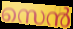
സെൻ